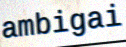
ambigai